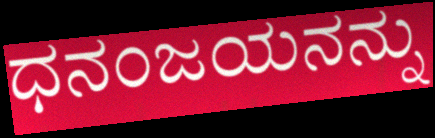
ಧನಂಜಯನನ್ನು